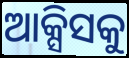
ଆକ୍ସିସକୁ